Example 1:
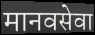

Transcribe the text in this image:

मानवसेवा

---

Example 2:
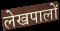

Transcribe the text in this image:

लेखपालों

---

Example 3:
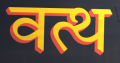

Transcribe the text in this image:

वत्थ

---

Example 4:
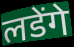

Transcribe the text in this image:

लडेंगे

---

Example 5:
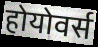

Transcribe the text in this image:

होयोवर्स